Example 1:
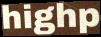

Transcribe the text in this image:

highp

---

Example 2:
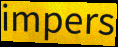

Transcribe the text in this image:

impers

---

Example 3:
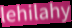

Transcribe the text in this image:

lehilahy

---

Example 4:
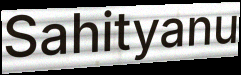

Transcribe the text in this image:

Sahityanu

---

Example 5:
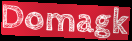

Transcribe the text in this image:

Domagk